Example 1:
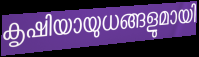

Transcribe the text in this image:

കൃഷിയായുധങ്ങളുമായി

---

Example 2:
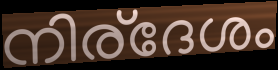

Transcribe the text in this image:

നിര്ദേശം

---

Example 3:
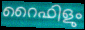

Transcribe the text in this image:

റൈഫിളും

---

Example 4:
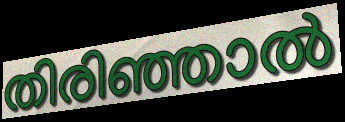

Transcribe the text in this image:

തിരിഞ്ഞാൽ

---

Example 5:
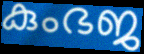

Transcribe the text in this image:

കുംഭജ